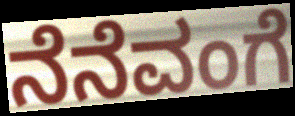
ನೆನೆವಂಗೆ